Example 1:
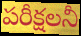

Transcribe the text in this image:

పరీక్షలనీ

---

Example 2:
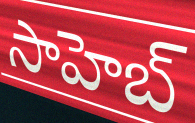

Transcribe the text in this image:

సాహెబ్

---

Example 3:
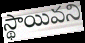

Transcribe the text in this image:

స్థాయివని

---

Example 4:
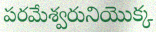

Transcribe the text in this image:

పరమేశ్వరునియొక్క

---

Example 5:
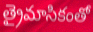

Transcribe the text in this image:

త్రైమాసికంతో